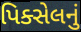
પિક્સેલનું